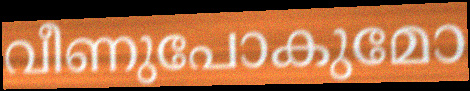
വീണുപോകുമോ